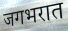
जगभरात